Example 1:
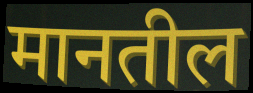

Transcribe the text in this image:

मानतील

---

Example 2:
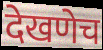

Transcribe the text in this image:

देखणेच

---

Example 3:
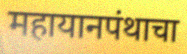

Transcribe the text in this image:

महायानपंथाचा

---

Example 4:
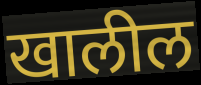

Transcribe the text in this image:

खालील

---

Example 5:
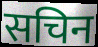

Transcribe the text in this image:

सचिन